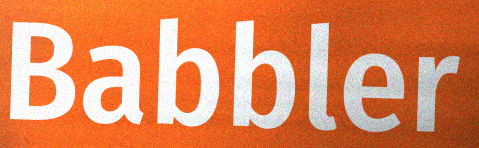
Babbler